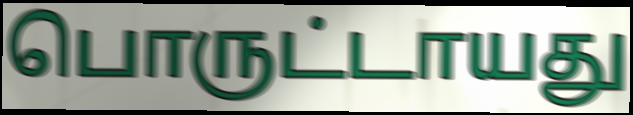
பொருட்டாயது